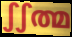
ഽഽത്മ